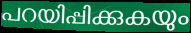
പറയിപ്പിക്കുകയും